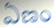
ఏణం